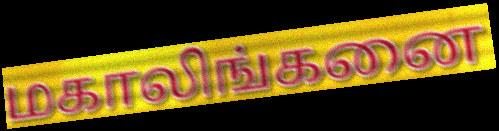
மகாலிங்கனை